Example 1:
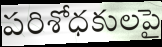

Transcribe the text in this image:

పరిశోధకులపై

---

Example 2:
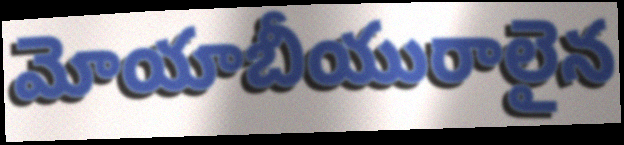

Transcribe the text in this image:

మోయాబీయురాలైన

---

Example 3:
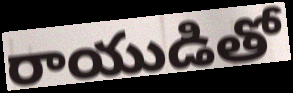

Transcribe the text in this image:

రాయుడితో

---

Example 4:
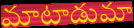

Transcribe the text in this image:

మాటాడుమా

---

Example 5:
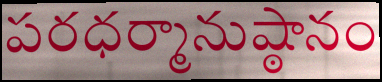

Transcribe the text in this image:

పరధర్మానుష్ఠానం